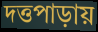
দত্তপাড়ায়